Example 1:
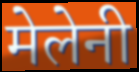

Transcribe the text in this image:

मेलेनी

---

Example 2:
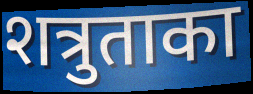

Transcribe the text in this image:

शत्रुताका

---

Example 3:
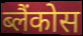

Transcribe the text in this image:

ब्लैंकोस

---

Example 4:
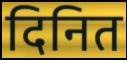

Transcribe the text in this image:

दिनित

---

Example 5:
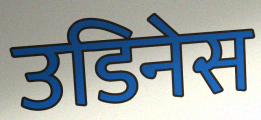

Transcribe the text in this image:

उडिनेस